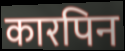
कारपिन